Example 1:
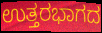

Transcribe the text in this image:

ಉತ್ತರಭಾಗದ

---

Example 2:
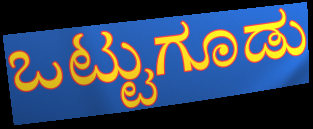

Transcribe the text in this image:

ಒಟ್ಟುಗೂಡು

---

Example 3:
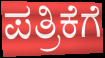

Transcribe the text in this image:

ಪತ್ರಿಕೆಗೆ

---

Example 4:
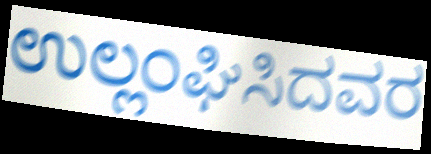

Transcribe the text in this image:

ಉಲ್ಲಂಘಿಸಿದವರ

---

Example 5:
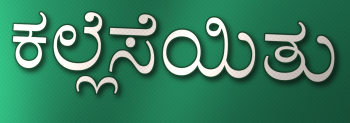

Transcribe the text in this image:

ಕಲ್ಲೆಸೆಯಿತು